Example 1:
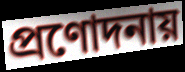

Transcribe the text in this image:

প্রণোদনায়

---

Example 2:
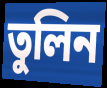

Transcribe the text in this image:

তুলিন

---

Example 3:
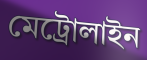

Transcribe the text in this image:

মেট্রোলাইন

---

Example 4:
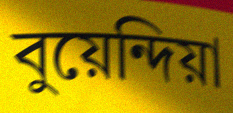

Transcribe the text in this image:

বুয়েন্দিয়া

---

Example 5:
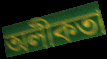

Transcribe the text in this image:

অলীকতা